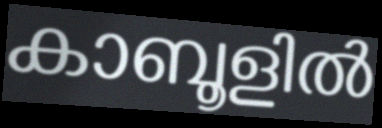
കാബൂളിൽ